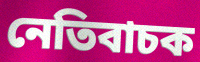
নেতিবাচক